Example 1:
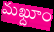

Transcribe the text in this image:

మఖ్దూం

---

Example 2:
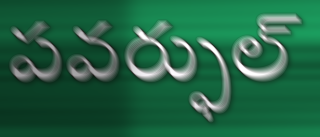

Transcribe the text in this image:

పవర్ఫుల్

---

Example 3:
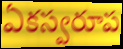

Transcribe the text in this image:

ఏకస్వరూప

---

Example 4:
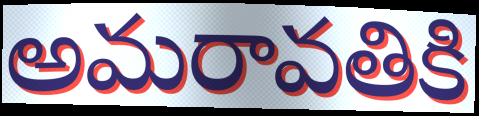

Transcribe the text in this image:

అమరావతికి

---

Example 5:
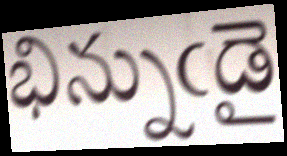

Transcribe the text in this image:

భిన్నుఁడై